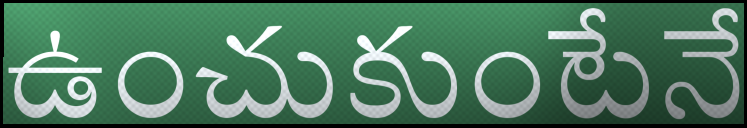
ఉంచుకుంటేనే